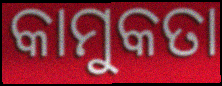
କାମୁକତା